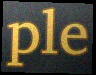
ple